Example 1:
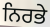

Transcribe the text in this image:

ਨਿਰਭੇ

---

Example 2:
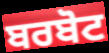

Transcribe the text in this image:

ਬਰਬੋਟ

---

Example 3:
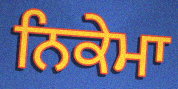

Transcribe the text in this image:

ਨਿਕੇਮਾ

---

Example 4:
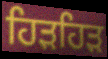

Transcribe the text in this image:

ਹਿੜਹਿੜ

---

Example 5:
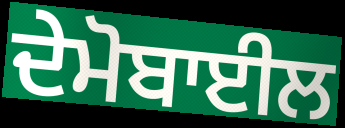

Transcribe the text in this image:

ਦੇਮੋਬਾਈਲ